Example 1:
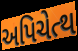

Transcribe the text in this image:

અપિચેત્થ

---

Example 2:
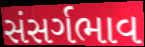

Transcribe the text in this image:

સંસર્ગભાવ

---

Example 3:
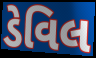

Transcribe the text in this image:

ડેવિલ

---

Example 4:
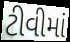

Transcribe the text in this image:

ટીવીમાં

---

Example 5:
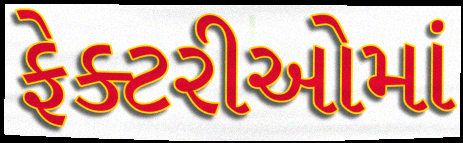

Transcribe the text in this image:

ફેક્ટરીઓમાં